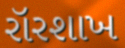
રૉરશાખ